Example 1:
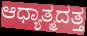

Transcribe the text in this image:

ಆಧ್ಯಾತ್ಮದತ್ತ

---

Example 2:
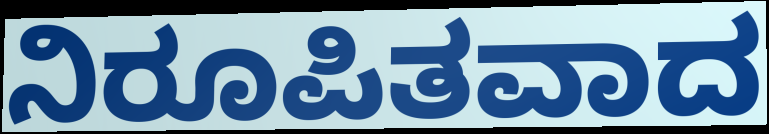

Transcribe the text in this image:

ನಿರೂಪಿತವಾದ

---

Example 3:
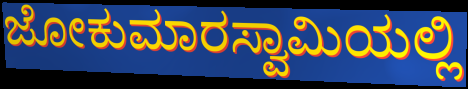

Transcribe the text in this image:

ಜೋಕುಮಾರಸ್ವಾಮಿಯಲ್ಲಿ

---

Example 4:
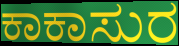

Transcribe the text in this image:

ಕಾಕಾಸುರ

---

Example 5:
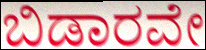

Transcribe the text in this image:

ಬಿಡಾರವೇ